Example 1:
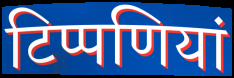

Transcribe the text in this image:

टिप्पणियां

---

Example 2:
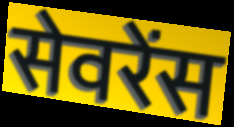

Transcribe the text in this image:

सेवरेंस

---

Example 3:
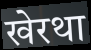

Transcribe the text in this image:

खेरथा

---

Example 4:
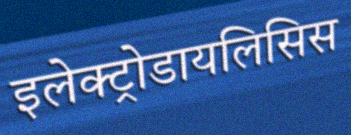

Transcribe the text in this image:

इलेक्ट्रोडायलिसिस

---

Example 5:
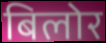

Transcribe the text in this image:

बिलोर